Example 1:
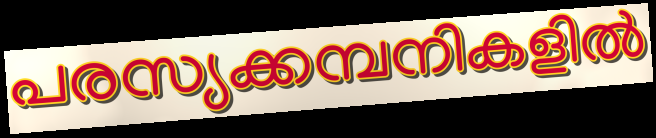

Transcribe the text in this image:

പരസ്യക്കമ്പനികളിൽ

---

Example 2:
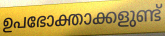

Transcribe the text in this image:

ഉപഭോക്താക്കളുണ്ട്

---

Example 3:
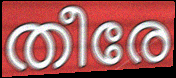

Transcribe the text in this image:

തീരേ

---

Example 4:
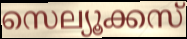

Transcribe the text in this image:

സെല്യൂക്കസ്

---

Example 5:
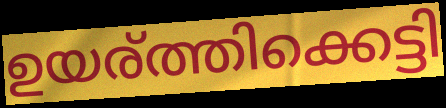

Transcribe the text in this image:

ഉയര്ത്തിക്കെട്ടി